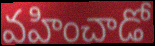
వహించాడో